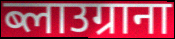
ब्लाउग्राना